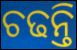
ଚଢନ୍ତି